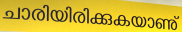
ചാരിയിരിക്കുകയാണു്